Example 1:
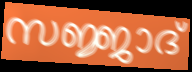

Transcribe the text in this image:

സജ്ജാദ്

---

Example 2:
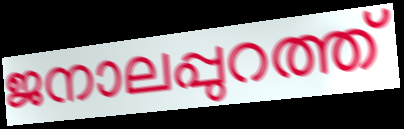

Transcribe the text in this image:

ജനാലപ്പുറത്ത്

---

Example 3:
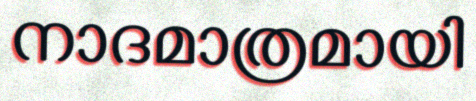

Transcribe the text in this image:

നാദമാത്രമായി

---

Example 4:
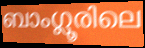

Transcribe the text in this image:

ബാംഗ്ലൂരിലെ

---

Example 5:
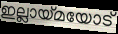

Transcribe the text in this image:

ഇല്ലായ്മയോട്